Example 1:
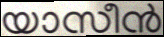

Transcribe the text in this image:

യാസീൻ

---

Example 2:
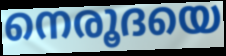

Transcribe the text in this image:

നെരൂദയെ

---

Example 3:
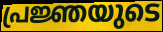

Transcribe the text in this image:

പ്രജ്ഞയുടെ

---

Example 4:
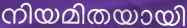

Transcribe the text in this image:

നിയമിതയായി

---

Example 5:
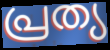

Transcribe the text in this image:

പ്രത്യ